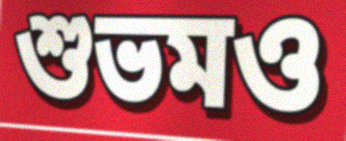
শুভমও